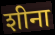
शीना